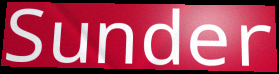
Sunder